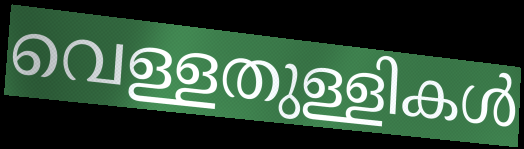
വെള്ളതുള്ളികൾ